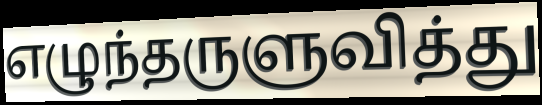
எழுந்தருளுவித்து